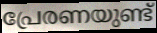
പ്രേരണയുണ്ട്